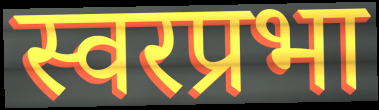
स्वरप्रभा